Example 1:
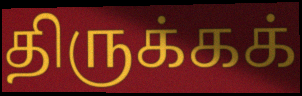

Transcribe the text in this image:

திருக்கக்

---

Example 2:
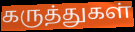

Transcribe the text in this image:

கருத்துகள்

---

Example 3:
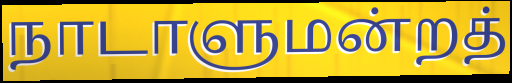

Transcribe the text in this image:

நாடாளுமன்றத்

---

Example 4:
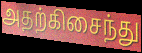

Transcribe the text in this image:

அதற்கிசைந்து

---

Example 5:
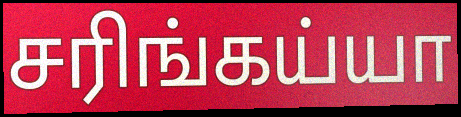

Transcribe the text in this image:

சரிங்கய்யா